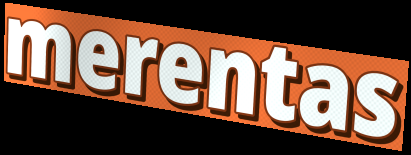
merentas